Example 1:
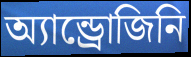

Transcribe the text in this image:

অ্যান্ড্রোজিনি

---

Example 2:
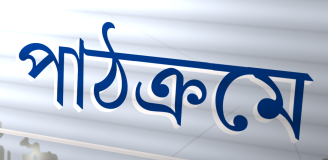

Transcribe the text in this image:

পাঠক্রমে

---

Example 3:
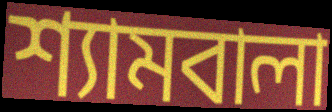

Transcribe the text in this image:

শ্যামবালা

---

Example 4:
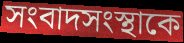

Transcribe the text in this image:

সংবাদসংস্থাকে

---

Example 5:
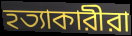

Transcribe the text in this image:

হত্যাকারীরা